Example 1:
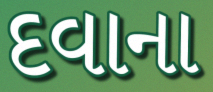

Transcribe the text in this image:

દવાના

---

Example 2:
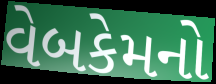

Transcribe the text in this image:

વેબકેમનો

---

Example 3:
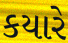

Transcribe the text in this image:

કયારે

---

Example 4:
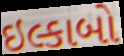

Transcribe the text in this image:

ઇલ્કાબો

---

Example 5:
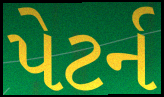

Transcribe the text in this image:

પેટર્ન